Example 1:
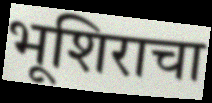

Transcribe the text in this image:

भूशिराचा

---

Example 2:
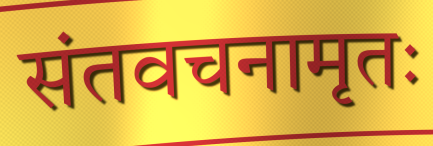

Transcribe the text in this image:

संतवचनामृतः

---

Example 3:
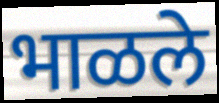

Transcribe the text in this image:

भाळले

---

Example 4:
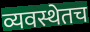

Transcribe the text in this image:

व्यवस्थेतच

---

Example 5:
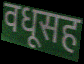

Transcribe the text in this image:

वधूसह